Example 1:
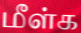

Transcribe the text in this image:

மீள்க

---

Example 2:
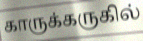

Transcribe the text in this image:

காருக்கருகில்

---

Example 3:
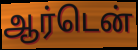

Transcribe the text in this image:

ஆர்டென்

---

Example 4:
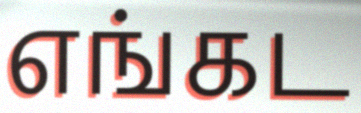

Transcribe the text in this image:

எங்கட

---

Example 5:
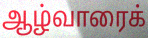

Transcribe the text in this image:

ஆழ்வாரைக்